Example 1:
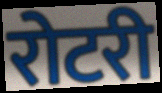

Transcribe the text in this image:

रोटरी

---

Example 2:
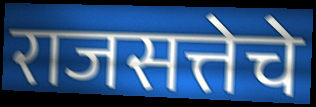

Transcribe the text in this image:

राजसत्तेचे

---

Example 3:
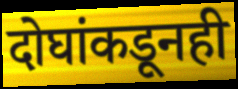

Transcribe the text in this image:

दोघांकडूनही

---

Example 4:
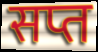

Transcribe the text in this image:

सप्त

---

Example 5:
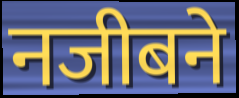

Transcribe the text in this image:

नजीबने